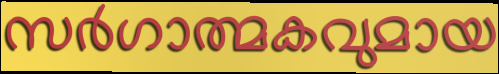
സർഗാത്മകവുമായ